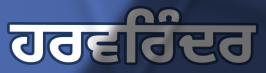
ਹਰਵਰਿੰਦਰ